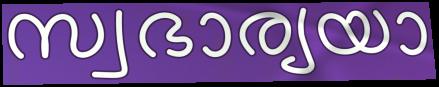
സ്വഭാര്യയാ